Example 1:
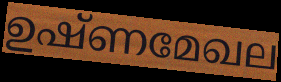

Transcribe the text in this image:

ഉഷ്ണമേഖല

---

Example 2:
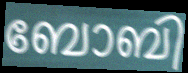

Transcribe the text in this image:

ബോബി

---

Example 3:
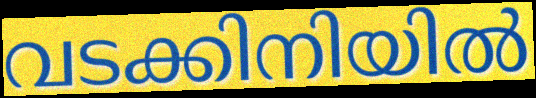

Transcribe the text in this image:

വടക്കിനിയിൽ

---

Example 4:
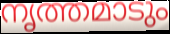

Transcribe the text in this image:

നൃത്തമാടും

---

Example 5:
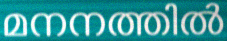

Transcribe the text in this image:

മനനത്തിൽ